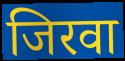
जिरवा